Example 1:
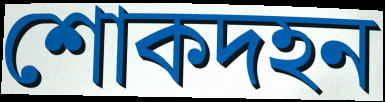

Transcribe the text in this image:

শোকদহন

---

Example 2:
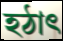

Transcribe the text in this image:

হঠাৎ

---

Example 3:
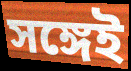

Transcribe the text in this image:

সঙ্গেই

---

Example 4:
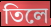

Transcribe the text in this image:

তিলে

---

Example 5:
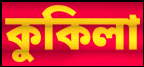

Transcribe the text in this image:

কুকিলা